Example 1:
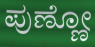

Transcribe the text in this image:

ಪುಣ್ಣೋ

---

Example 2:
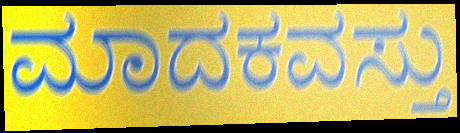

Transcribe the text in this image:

ಮಾದಕವಸ್ತು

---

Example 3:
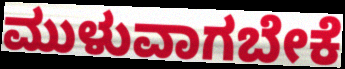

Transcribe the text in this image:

ಮುಳುವಾಗಬೇಕೆ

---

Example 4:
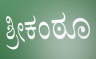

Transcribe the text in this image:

ಶ್ರೀಕಂಠೂ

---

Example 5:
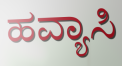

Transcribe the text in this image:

ಹವ್ಯಾಸಿ